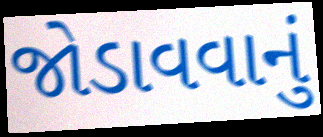
જોડાવવાનું